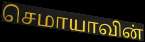
செமாயாவின்